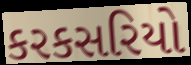
કરકસરિયો